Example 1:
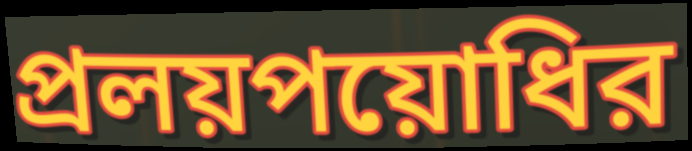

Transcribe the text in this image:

প্রলয়পয়োধির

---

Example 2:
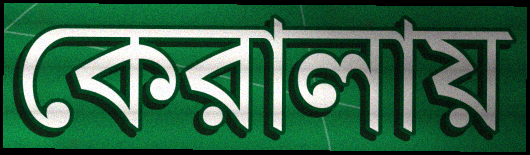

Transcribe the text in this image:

কেরালায়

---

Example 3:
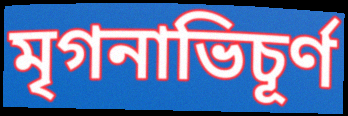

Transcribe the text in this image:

মৃগনাভিচূর্ণ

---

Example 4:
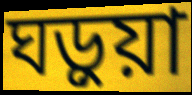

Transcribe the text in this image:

ঘড়ুয়া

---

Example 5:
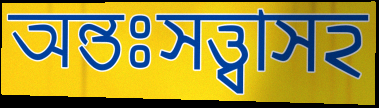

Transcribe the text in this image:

অন্তঃসত্ত্বাসহ